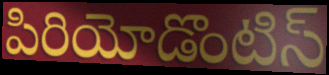
పిరియోడొంటిస్